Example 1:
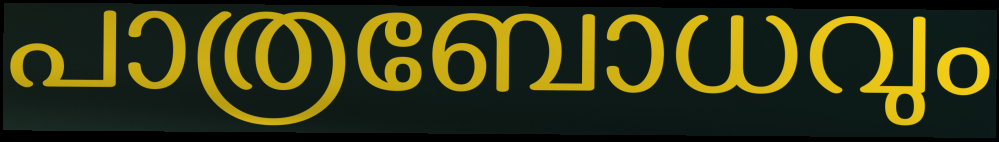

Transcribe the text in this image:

പാത്രബോധവും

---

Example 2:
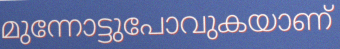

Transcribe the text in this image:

മുന്നോട്ടുപോവുകയാണ്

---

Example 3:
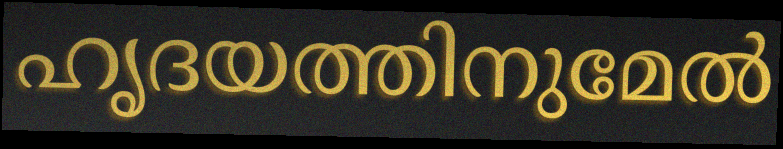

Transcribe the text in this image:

ഹൃദയത്തിനുമേൽ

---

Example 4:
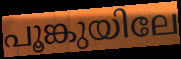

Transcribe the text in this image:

പൂങ്കുയിലേ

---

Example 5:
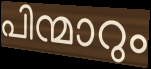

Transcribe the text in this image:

പിന്മാറും